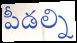
పీడల్ని